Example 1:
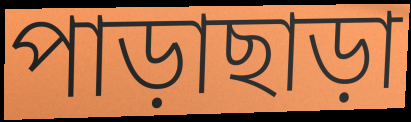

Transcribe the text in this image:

পাড়াছাড়া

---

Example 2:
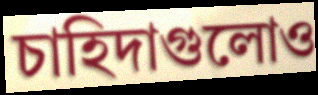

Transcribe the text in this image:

চাহিদাগুলোও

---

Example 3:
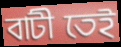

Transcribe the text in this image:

বাটীতেই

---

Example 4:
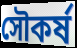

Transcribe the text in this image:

সৌকর্ষ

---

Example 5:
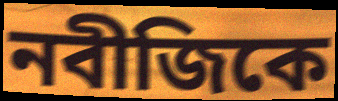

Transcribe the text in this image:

নবীজিকে